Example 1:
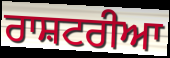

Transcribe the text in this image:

ਰਾਸ਼ਟਰੀਆ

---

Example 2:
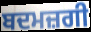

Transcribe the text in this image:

ਬਦਮਜ਼ਗੀ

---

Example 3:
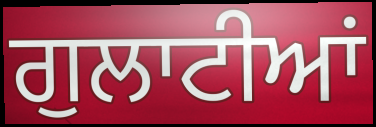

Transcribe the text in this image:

ਗੁਲਾਟੀਆਂ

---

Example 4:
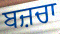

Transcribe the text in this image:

ਬਜ਼ਚਾ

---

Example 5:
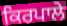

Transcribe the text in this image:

ਕਿਰਪਾਲੇ